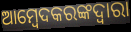
ଆମ୍ବେଦକରଙ୍କଦ୍ୱାରା